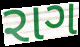
રાગ